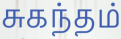
சுகந்தம்